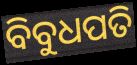
ବିବୁଧପତି